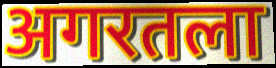
अगरतला